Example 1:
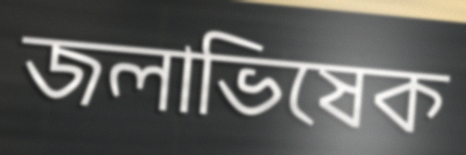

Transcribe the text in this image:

জলাভিষেক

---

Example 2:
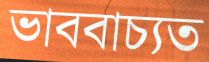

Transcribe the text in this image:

ভাববাচ্যত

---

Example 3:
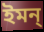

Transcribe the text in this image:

ইমন্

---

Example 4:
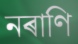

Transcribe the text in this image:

নৰাণি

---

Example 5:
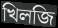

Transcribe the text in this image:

খিলজি